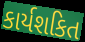
કાર્યશકિત